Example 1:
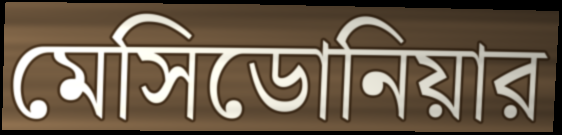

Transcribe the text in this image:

মেসিডোনিয়ার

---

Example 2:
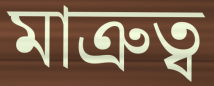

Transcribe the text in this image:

মাত্রুত্ব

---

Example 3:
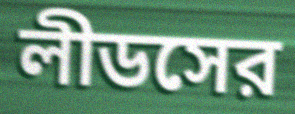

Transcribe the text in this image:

লীডসের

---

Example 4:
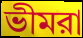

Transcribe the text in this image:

ভীমরা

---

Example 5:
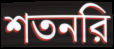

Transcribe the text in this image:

শতনরি